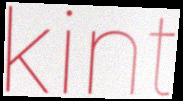
kint